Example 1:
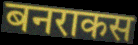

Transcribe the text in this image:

बनराकस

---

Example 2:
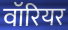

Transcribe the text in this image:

वॉरियर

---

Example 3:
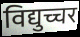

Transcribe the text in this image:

विद्युच्चर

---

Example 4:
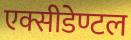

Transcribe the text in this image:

एक्सीडेण्टल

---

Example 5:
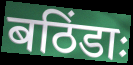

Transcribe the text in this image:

बठिंडाः